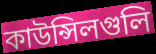
কাউন্সিলগুলি